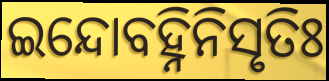
ଇନ୍ଦୋବହ୍ନିନିସୃତିଃ